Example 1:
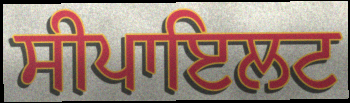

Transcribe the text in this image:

ਸੀਪਾਇਲਟ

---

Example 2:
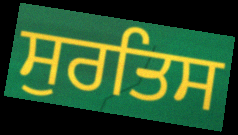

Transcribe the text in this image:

ਸੁਰਤਿਸ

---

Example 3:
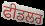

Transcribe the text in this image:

ਫੀਡਲਰ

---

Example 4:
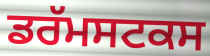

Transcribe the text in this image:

ਡਰੱਮਸਟਕਸ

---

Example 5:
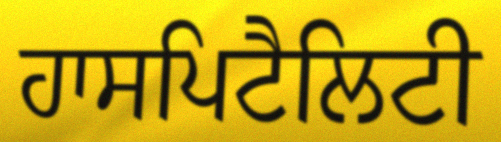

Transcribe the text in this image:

ਹਾਸਪਿਟੈਲਿਟੀ